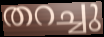
തറച്ചു